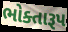
ભોક્તારૂપ